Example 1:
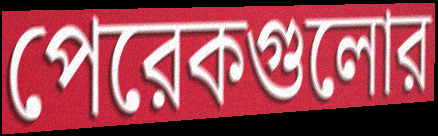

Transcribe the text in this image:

পেরেকগুলোর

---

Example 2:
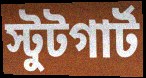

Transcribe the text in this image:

স্টুটগার্ট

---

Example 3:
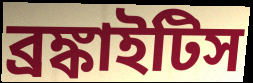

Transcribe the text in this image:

ব্রঙ্কাইটিস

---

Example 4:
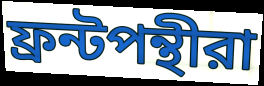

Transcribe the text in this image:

ফ্রন্টপন্থীরা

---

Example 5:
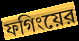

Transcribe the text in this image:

ফগিংয়ের